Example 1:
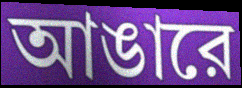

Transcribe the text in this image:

আঙারে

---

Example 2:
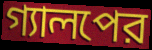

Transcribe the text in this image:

গ্যালপের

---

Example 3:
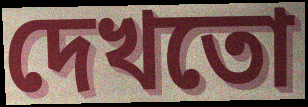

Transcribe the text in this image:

দেখতো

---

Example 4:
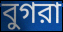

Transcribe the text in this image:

বুগরা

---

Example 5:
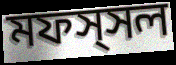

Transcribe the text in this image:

মফস্‌সল